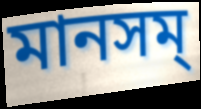
মানসম্